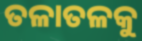
ତଳାତଳକୁ